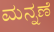
ಮನ್ನಣೆ